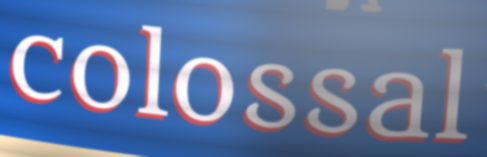
colossal